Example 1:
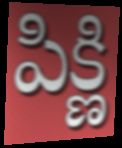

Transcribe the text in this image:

పిక్ణి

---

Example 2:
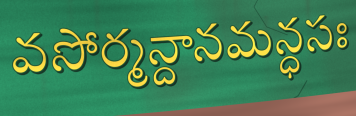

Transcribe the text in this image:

వసోర్మన్దానమన్ధసః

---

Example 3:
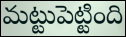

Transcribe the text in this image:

మట్టుపెట్టింది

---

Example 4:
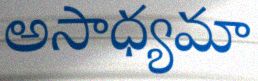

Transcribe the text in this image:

అసాధ్యమా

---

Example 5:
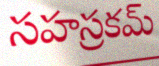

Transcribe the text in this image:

సహస్రకమ్